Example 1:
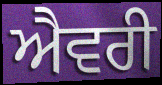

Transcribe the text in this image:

ਐਵਰੀ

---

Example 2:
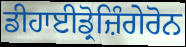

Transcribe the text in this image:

ਡੀਹਾਈਡ੍ਰੋਜ਼ਿੰਗੇਰੋਨ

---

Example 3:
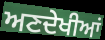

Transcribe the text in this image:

ਅਣਦੇਖੀਆਂ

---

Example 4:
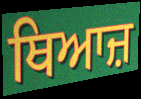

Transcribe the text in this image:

ਥਿਆਜ਼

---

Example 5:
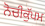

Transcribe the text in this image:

ਨੋਚੀਕੁੱਪਮ